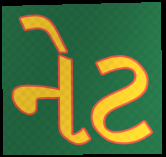
નેટ